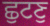
ਛੁਟਣੁ